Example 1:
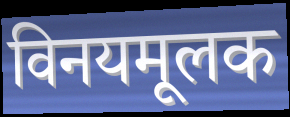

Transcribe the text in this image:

विनयमूलक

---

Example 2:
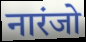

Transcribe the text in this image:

नारंजो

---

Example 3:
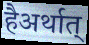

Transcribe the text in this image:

हैअर्थात्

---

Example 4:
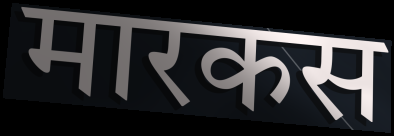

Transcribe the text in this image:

मारकस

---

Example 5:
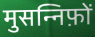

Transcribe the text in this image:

मुसन्निफ़ों